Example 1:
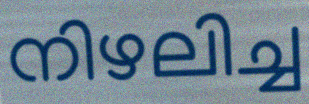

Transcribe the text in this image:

നിഴലിച്ച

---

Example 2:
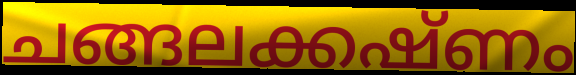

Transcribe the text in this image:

ചങ്ങലക്കഷ്ണം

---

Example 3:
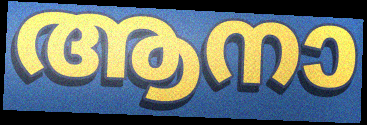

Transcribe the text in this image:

ആനാ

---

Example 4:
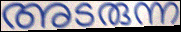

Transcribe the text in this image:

അടരുന്ന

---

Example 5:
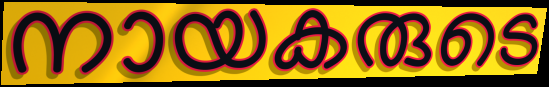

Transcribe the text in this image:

നായകരുടെ